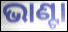
ଭାଣ୍ଟା